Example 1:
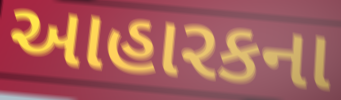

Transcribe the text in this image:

આહારકના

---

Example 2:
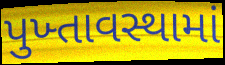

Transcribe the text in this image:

પુખ્તાવસ્થામાં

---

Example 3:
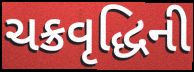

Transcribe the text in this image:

ચક્રવૃદ્ધિની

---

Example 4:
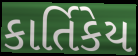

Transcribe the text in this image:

કાર્તિકેય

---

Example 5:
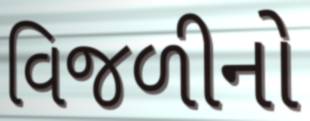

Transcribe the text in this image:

વિજળીનો